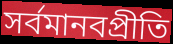
সর্বমানবপ্রীতি